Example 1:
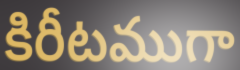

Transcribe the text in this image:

కిరీటముగా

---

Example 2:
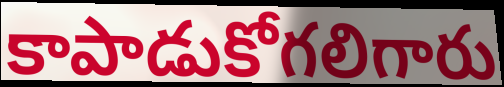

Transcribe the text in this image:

కాపాడుకోగలిగారు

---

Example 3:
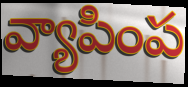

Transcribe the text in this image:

వ్యాపింప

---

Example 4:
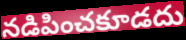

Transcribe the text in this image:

నడిపించకూడదు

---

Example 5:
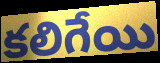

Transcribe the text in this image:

కలిగేయి